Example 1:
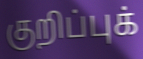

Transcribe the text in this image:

குறிப்புக்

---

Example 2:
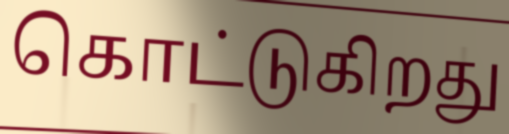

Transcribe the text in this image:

கொட்டுகிறது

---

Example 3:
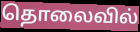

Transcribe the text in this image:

தொலைவில்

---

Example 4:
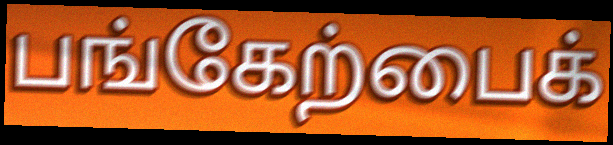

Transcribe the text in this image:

பங்கேற்பைக்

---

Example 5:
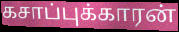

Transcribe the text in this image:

கசாப்புக்காரன்